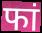
फां